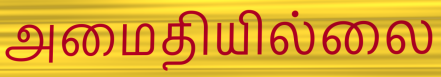
அமைதியில்லை